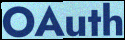
OAuth